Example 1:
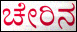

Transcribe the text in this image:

ಚೇರಿನ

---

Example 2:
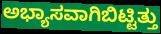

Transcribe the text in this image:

ಅಭ್ಯಾಸವಾಗಿಬಿಟ್ಟಿತ್ತು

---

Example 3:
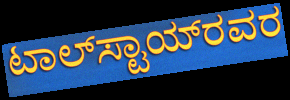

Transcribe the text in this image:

ಟಾಲ್‌ಸ್ಟಾಯ್‌ರವರ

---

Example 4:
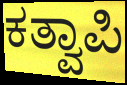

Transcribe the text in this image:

ಕತ್ವಾಪಿ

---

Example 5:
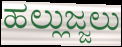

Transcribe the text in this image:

ಹಲ್ಲುಜ್ಜಲು